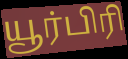
யூர்பிரி